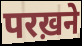
परख़ने